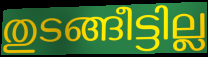
തുടങ്ങീട്ടില്ല